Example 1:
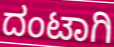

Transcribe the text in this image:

ದಂಟಾಗಿ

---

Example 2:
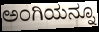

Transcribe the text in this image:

ಅಂಗಿಯನ್ನೂ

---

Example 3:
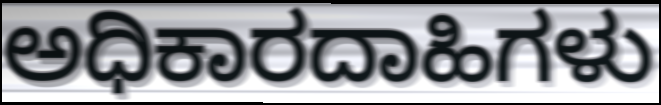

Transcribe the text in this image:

ಅಧಿಕಾರದಾಹಿಗಳು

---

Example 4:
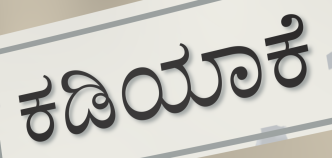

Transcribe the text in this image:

ಕಡಿಯಾಕೆ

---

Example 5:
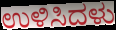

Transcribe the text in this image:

ಉಳಿಸಿದಳು